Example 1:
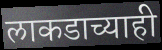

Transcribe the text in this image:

लाकडाच्याही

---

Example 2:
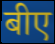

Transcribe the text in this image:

बीए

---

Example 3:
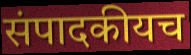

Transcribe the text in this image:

संपादकीयच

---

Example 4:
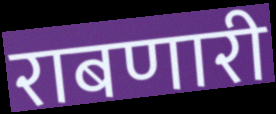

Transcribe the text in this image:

राबणारी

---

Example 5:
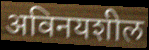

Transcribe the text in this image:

अविनयशील